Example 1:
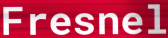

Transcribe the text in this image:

Fresnel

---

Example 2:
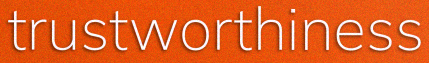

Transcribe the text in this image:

trustworthiness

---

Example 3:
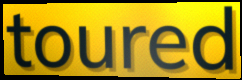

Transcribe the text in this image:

toured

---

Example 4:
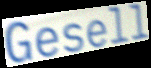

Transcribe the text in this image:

Gesell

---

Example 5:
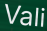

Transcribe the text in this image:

Vali